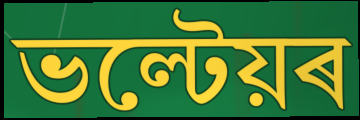
ভল্টেয়ৰ